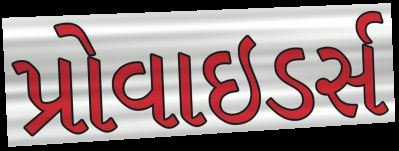
પ્રોવાઇડર્સ